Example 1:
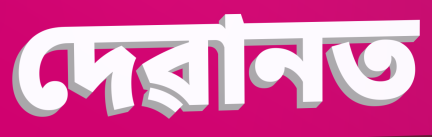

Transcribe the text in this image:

দেৱানত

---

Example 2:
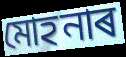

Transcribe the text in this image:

মোহনাৰ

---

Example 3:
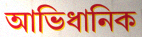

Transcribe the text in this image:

আভিধানিক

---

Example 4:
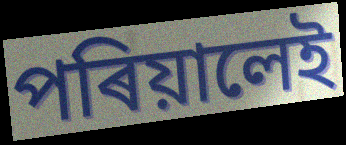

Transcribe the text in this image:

পৰিয়ালেই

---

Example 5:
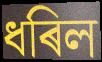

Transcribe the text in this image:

ধৰিল